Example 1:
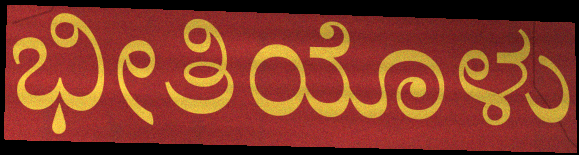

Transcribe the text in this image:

ಭೀತಿಯೊಳು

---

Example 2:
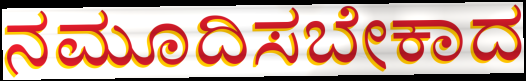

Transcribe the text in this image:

ನಮೂದಿಸಬೇಕಾದ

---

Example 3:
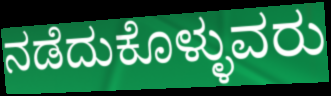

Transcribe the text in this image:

ನಡೆದುಕೊಳ್ಳುವರು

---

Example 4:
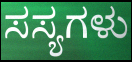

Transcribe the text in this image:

ಸಸ್ಯಗಳು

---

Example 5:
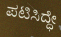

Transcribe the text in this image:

ಪಟಿಸಿದ್ಧೇ